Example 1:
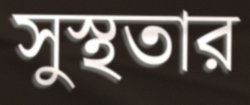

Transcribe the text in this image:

সুস্থতার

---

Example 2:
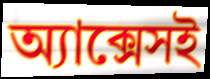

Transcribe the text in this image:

অ্যাক্সেসই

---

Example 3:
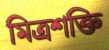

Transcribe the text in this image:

মিত্রশক্তি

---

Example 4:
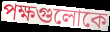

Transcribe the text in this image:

পক্ষগুলোকে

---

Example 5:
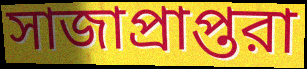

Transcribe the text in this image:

সাজাপ্রাপ্তরা